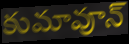
కుమావూన్